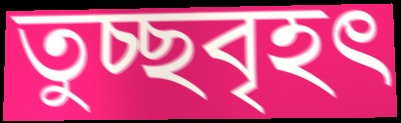
তুচ্ছবৃহৎ